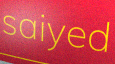
saiyed